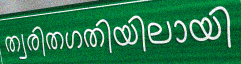
ത്വരിതഗതിയിലായി